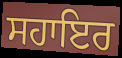
ਸਹਾਇਰ